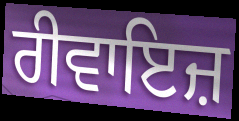
ਰੀਵਾਇਜ਼